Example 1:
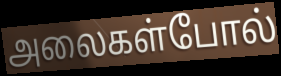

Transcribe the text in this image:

அலைகள்போல்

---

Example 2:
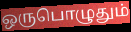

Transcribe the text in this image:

ஒருபொழுதும்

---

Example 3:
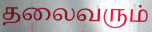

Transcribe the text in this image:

தலைவரும்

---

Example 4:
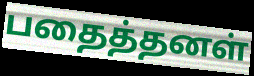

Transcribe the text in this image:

பதைத்தனள்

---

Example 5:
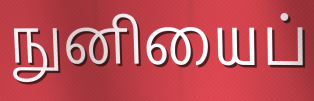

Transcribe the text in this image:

நுனியைப்